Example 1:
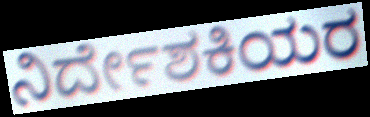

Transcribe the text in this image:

ನಿರ್ದೇಶಕಿಯರ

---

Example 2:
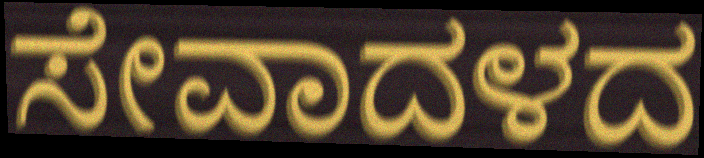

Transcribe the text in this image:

ಸೇವಾದಳದ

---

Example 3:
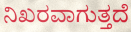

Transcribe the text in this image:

ನಿಖರವಾಗುತ್ತದೆ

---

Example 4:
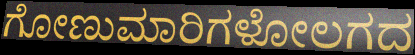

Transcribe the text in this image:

ಗೋಣುಮಾರಿಗಳೋಲಗದ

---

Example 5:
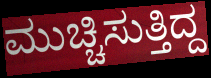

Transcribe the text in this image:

ಮುಚ್ಚಿಸುತ್ತಿದ್ದ